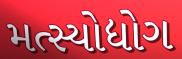
મત્સ્યોદ્યોગ